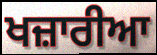
ਖਜ਼ਾਰੀਆ